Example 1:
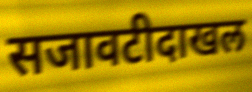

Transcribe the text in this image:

सजावटीदाखल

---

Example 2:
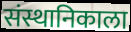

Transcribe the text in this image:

संस्थानिकाला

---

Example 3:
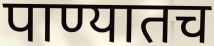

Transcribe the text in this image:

पाण्यातच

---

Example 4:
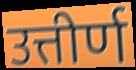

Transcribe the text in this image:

उत्तीर्ण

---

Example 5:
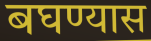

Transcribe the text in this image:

बघण्यास